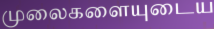
முலைகளையுடைய